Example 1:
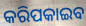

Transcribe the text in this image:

କରିପକାଇବ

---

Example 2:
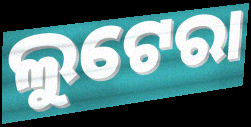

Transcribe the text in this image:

ଲୁଟେରା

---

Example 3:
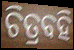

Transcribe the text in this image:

ଚିତ୍ରବହି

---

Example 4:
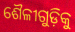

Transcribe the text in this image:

ଶୈଳୀଗୁଡ଼ିକୁ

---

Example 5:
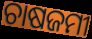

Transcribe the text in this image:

ଚାଷଜମୀ